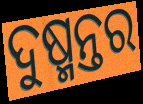
ଦୁଷ୍ମନ୍ତର